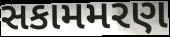
સકામમરણ